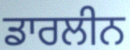
ਡਾਰਲੀਨ